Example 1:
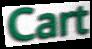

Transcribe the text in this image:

Cart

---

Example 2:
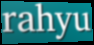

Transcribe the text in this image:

rahyu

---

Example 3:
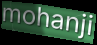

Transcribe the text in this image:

mohanji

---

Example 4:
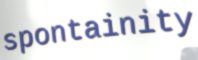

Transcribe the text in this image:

spontainity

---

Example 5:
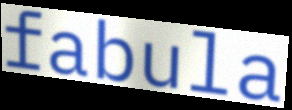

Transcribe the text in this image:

fabula